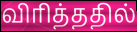
விரித்ததில்